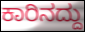
ಕಾರಿನದ್ದು